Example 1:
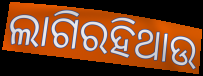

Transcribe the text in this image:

ଲାଗିରହିଥାଉ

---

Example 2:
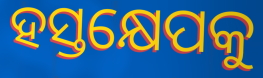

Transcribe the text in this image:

ହସ୍ତକ୍ଷେପକୁ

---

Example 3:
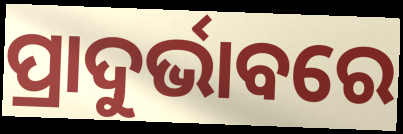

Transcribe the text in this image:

ପ୍ରାଦୁର୍ଭାବରେ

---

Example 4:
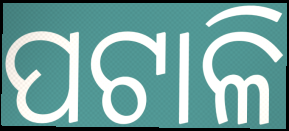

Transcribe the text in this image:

ପଟାଳି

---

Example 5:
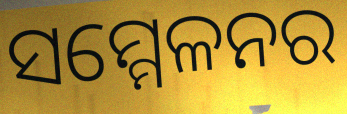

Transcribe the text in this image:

ସମ୍ମେଳନର